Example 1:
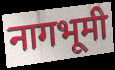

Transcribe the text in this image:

नागभूमी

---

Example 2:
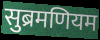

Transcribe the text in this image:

सुब्रमणियम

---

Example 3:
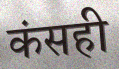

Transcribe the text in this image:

कंसही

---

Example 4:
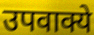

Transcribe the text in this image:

उपवाक्ये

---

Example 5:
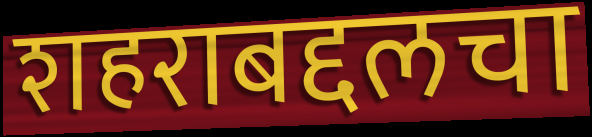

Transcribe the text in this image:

शहराबद्दलचा